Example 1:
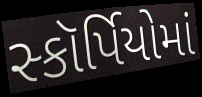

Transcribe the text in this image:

સ્કૉર્પિયોમાં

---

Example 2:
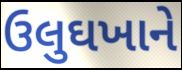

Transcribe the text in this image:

ઉલુઘખાને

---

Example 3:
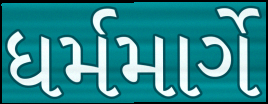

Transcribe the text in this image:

ધર્મમાર્ગે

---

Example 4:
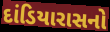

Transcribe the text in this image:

દાંડિયારાસનો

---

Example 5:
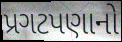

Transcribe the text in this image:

પ્રગટપણાનો